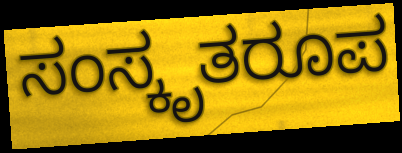
ಸಂಸ್ಕೃತರೂಪ